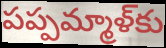
పప్పమ్మాళ్‌కు